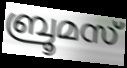
ബ്രൂമസ്